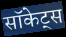
सॉकेट्स